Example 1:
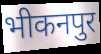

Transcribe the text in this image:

भीकनपुर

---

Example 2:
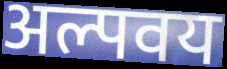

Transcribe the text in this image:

अल्पवय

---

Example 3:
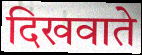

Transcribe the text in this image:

दिखवाते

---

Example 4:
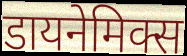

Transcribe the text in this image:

डायनेमिक्स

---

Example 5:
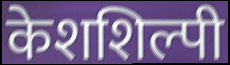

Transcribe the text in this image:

केशशिल्पी